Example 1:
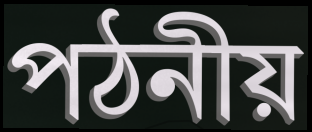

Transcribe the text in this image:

পঠনীয়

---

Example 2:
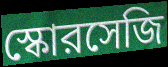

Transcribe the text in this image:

স্কোরসেজি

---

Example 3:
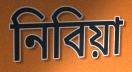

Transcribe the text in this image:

নিবিয়া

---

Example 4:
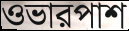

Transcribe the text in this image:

ওভারপাশ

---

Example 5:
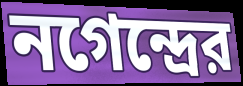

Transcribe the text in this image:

নগেন্দ্রের